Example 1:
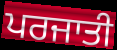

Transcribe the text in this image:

ਪਰਜਾਤੀ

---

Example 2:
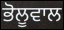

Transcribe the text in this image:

ਭੋਲੂਵਾਲ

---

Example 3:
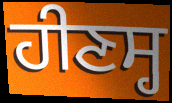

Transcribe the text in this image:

ਹੀਣਸ੍ਹ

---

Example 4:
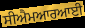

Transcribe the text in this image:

ਸੀਐਮਆਰਆਈ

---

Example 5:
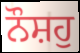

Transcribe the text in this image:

ਨੌਸ਼ਹੁ